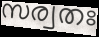
സര്വതഃ